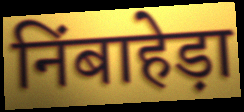
निंबाहेड़ा